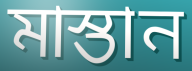
মাস্তান